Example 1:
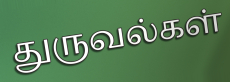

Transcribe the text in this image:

துருவல்கள்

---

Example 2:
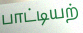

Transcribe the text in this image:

பாட்டியற்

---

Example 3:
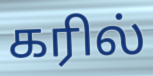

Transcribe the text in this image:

கரில்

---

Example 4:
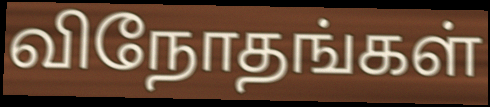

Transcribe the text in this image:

விநோதங்கள்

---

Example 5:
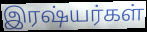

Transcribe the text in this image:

இரஷ்யர்கள்